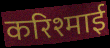
करिश्माई